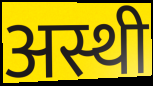
अस्थी